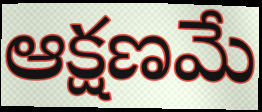
ఆక్షణమే